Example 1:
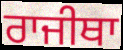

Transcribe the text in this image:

ਰਾਜੀਥਾ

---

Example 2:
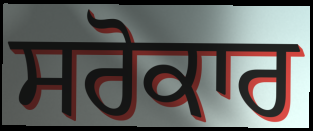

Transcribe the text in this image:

ਸਰੋਕਾਰ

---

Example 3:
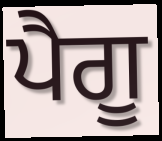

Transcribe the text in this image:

ਪੈਗੂ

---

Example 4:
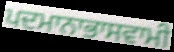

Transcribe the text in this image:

ਪਦਮਾਨਾਭਾਸਵਾਮੀ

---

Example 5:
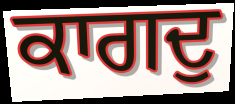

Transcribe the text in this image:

ਕਾਗਦੁ